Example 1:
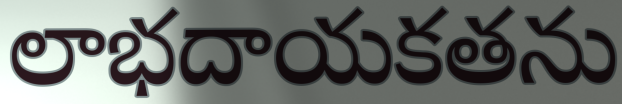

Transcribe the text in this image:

లాభదాయకతను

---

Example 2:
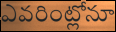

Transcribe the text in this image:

ఎవరింట్లోనూ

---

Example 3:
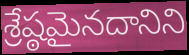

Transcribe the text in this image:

శ్రేష్ఠమైనదానిని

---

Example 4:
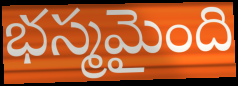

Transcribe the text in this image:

భస్మమైంది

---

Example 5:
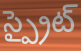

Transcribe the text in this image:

స్ప్రైట్